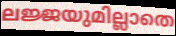
ലജ്ജയുമില്ലാതെ